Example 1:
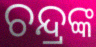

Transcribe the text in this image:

ଚନ୍ଦ୍ରଙ୍କ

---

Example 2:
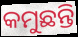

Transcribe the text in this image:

କମୁଛନ୍ତି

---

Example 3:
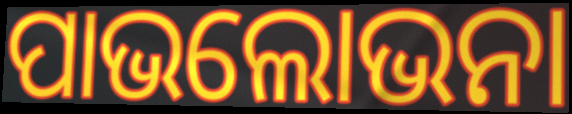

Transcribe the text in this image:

ପାଭଲୋଭନା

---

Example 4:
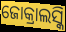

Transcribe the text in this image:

ଜୋକ୍ରାଲସ୍କି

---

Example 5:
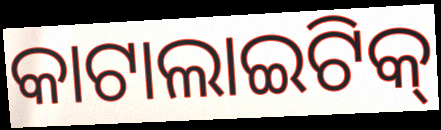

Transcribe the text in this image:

କାଟାଲାଇଟିକ୍